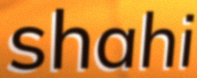
shahi